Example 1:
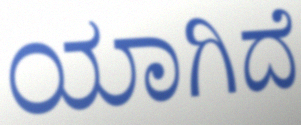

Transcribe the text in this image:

ಯಾಗಿದೆ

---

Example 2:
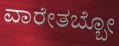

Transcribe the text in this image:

ವಾರೇತಬ್ಬೋ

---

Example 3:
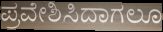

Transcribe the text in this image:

ಪ್ರವೇಶಿಸಿದಾಗಲೂ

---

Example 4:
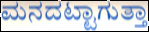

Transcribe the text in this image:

ಮನದಟ್ಟಾಗುತ್ತಾ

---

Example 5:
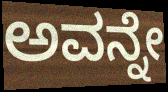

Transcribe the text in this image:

ಅವನ್ನೇ